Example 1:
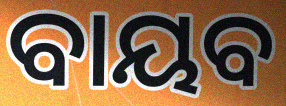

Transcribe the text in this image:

ବାୟବ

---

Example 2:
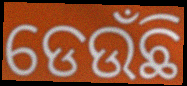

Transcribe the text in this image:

ଡେଉଁଛି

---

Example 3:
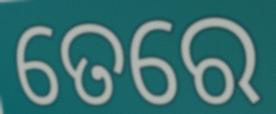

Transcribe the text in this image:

ତେରେ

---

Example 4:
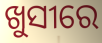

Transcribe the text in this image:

ଖୁସୀରେ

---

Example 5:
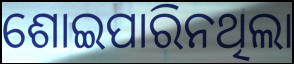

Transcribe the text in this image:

ଶୋଇପାରିନଥିଲା